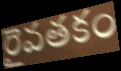
రైవతకం